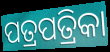
ପତ୍ରପତ୍ରିକା